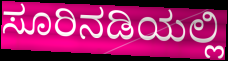
ಸೂರಿನಡಿಯಲ್ಲಿ